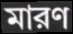
মারণ